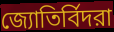
জ্যোতির্বিদরা